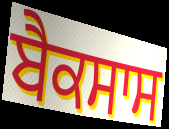
ਬੈਕਸਾਸ